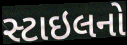
સ્ટાઇલનો